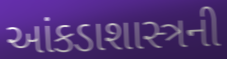
આંકડાશાસ્ત્રની